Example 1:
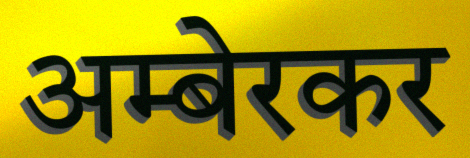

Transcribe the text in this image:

अम्बेरकर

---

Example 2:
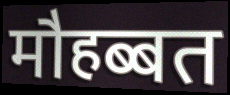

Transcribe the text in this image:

मौहब्बत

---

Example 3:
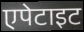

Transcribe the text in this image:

एपेटाइट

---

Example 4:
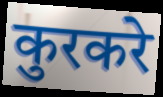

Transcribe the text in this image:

कुरकरे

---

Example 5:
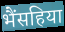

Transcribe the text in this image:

भैंसहिया